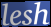
lesh